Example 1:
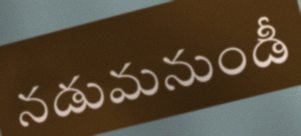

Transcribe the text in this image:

నడుమనుండీ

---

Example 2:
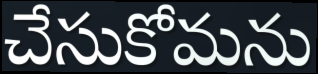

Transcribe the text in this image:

చేసుకోమను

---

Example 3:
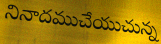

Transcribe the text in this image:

నినాదముచేయుచున్న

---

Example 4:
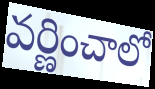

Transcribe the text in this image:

వర్ణించాలో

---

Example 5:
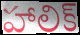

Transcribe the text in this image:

హాలిక్